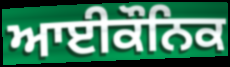
ਆਈਕੌਨਿਕ